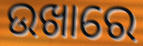
ଉଖାରେ